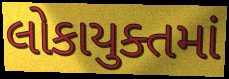
લોકાયુક્તમાં